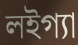
লইগ্যা